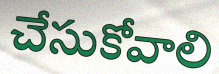
చేసుకోవాలి